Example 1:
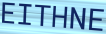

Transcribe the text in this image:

EITHNE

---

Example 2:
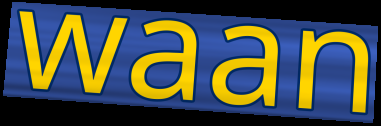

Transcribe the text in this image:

waan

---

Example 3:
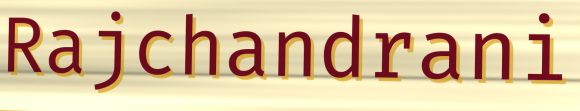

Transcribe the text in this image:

Rajchandrani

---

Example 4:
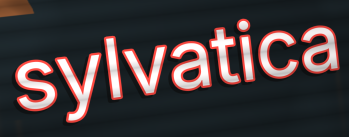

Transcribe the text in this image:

sylvatica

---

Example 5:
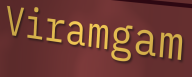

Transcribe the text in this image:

Viramgam